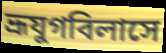
ভ্রূযুগবিলাসে